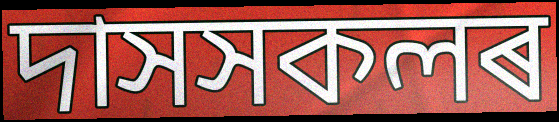
দাসসকলৰ